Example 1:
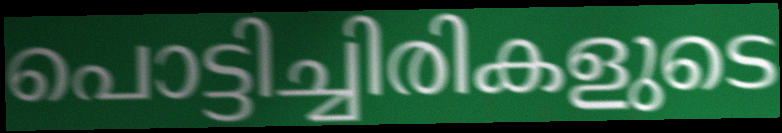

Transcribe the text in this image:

പൊട്ടിച്ചിരികളുടെ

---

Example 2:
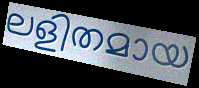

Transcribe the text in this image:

ലളിതമായ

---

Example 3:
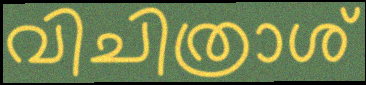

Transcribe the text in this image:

വിചിത്രാശ്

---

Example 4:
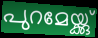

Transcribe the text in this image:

പുറമേയ്ക്കു്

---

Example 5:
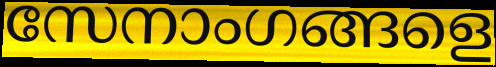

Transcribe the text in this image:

സേനാംഗങ്ങളെ